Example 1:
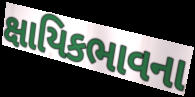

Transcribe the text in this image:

ક્ષાયિકભાવના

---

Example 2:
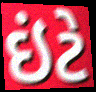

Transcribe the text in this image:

ઇંટે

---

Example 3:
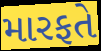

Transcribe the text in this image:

મારફતે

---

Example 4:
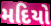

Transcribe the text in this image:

મદિયો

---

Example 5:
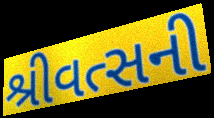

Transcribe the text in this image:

શ્રીવત્સની